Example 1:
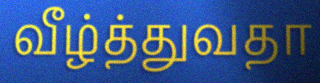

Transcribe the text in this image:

வீழ்த்துவதா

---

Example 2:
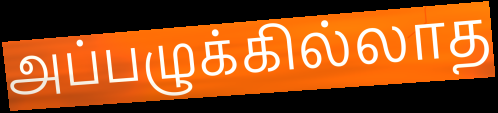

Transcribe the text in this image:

அப்பழுக்கில்லாத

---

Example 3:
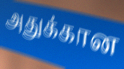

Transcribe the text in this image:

அதுக்கான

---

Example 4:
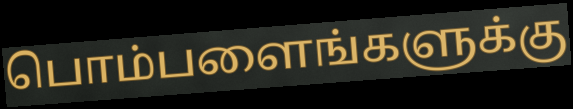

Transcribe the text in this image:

பொம்பளைங்களுக்கு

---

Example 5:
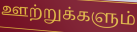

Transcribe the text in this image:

ஊற்றுக்களும்